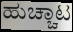
ಹುಚ್ಚಾಟ